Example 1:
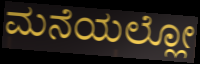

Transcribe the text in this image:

ಮನೆಯಲ್ಲೋ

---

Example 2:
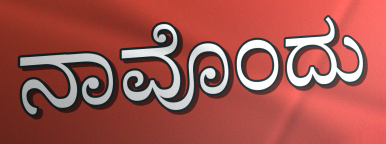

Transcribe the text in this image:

ನಾವೊಂದು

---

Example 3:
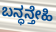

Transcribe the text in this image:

ಬನ್ಧನ್ತೇಹಿ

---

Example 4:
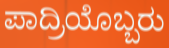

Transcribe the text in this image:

ಪಾದ್ರಿಯೊಬ್ಬರು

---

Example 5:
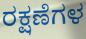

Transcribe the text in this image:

ರಕ್ಷಣೆಗಳ